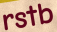
rstb